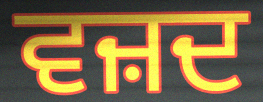
ਵਜ਼ਦ